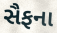
સૈફના